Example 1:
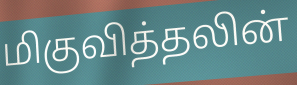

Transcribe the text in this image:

மிகுவித்தலின்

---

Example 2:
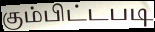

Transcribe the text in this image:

கும்பிட்டபடி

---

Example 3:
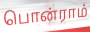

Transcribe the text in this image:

பொன்ராம்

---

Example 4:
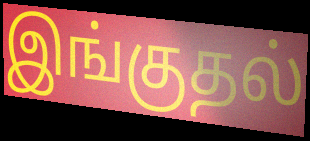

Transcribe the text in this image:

இங்குதல்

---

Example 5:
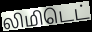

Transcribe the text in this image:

லிமிடெட்